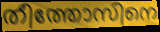
തീത്തോസിനെ